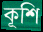
কূশি